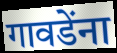
गावडेंना